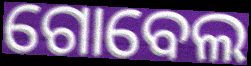
ଗୋବେଲ